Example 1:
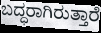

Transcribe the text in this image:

ಬದ್ಧರಾಗಿರುತ್ತಾರೆ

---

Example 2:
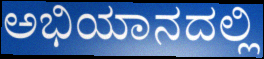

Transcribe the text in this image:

ಅಭಿಯಾನದಲ್ಲಿ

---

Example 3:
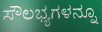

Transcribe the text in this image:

ಸೌಲಭ್ಯಗಳನ್ನೂ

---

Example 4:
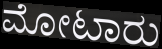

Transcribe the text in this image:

ಮೋಟಾರು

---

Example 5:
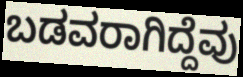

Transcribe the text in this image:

ಬಡವರಾಗಿದ್ದೆವು